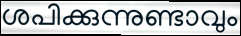
ശപിക്കുന്നുണ്ടാവും